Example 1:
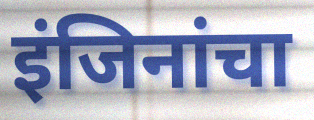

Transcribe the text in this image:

इंजिनांचा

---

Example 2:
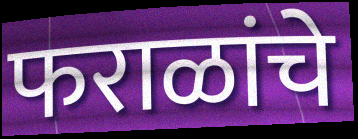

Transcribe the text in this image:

फराळांचे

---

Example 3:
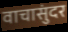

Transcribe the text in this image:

वाचासुंदर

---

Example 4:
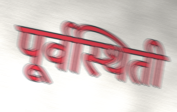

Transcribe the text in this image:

पूर्वस्थिती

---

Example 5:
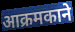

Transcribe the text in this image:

आक्रमकाने